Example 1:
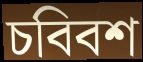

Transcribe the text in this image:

চবিবশ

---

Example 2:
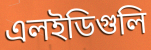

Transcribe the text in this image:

এলইডিগুলি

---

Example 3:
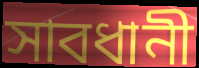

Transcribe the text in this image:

সাবধানী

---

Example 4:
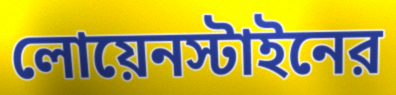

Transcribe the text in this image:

লোয়েনস্টাইনের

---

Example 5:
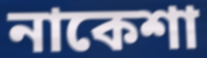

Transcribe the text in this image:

নাকেশা